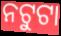
ନଟୁଟା